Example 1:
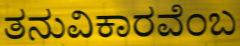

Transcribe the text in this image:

ತನುವಿಕಾರವೆಂಬ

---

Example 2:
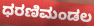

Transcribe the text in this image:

ಧರಣಿಮಂಡಲ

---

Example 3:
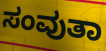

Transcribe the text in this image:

ಸಂವುತಾ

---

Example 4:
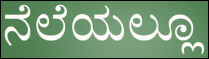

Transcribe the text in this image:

ನೆಲೆಯಲ್ಲೂ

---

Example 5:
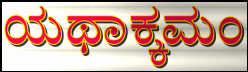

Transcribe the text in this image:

ಯಥಾಕ್ಕಮಂ